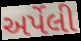
અર્પેલી